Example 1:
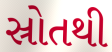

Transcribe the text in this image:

સ્રોતથી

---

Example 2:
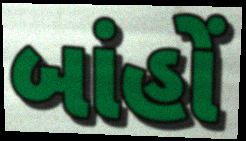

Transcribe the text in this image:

બાંહોં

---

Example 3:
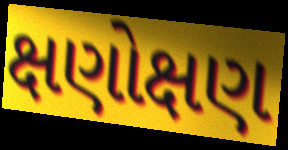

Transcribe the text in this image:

ક્ષણોક્ષણ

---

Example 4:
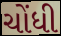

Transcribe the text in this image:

ચોંધી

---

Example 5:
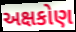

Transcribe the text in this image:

અક્ષકોણ